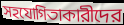
সহযোগিতাকারীদের